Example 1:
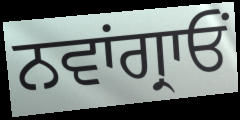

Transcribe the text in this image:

ਨਵਾਂਗ੍ਰਾਓਂ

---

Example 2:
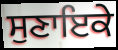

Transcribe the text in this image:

ਸੁਣਾਇਕੇ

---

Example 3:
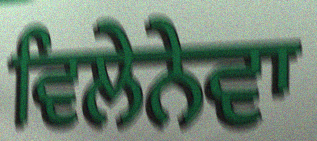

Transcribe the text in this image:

ਵਿਲੇਨੇਵਾ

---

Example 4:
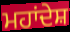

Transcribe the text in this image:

ਮਹਾਂਦੇਸ਼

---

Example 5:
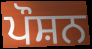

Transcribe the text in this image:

ਪੌਸ਼ਨ